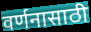
वर्णनासाठी